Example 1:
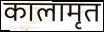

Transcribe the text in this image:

कालामृत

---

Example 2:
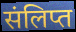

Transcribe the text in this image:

संलिप्त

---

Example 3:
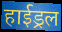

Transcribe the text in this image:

हाईड्रल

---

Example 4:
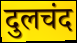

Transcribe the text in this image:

दुलचंद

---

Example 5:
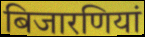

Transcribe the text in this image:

बिजारणियां